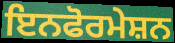
ਇਨਫੋਰਮੇਸ਼ਨ